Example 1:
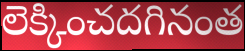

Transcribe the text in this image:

లెక్కించదగినంత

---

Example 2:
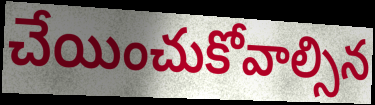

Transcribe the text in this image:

చేయించుకోవాల్సిన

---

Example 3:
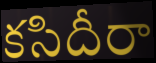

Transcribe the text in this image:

కసిదీరా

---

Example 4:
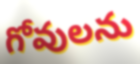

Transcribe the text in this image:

గోవులను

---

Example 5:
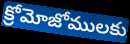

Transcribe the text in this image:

క్రోమోజోములకు